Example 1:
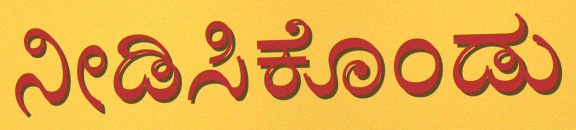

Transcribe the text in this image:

ನೀಡಿಸಿಕೊಂಡು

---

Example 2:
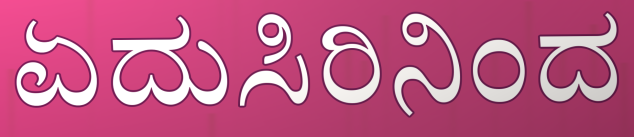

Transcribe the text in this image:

ಏದುಸಿರಿನಿಂದ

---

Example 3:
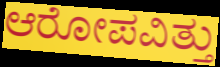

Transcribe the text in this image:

ಆರೋಪವಿತ್ತು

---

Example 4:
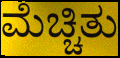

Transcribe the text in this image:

ಮೆಚ್ಚಿತು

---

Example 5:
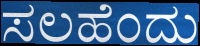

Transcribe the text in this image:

ಸಲಹೆಂದು